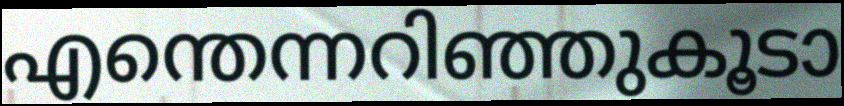
എന്തെന്നറിഞ്ഞുകൂടാ